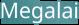
Megalai